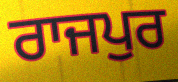
ਰਾਜਪੁਰ